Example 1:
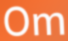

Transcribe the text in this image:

Om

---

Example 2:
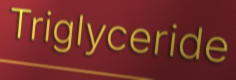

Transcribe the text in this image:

Triglyceride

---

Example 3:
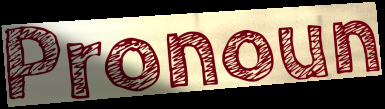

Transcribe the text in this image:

Pronoun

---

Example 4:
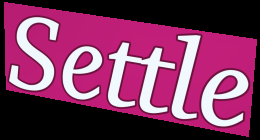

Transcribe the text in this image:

Settle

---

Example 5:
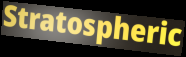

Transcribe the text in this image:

Stratospheric